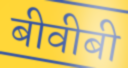
बीवीबी